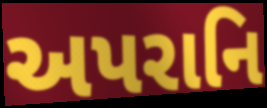
અપરાનિ